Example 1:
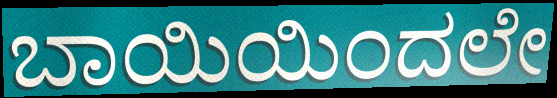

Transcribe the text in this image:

ಬಾಯಿಯಿಂದಲೇ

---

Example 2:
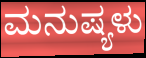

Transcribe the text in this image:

ಮನುಷ್ಯಳು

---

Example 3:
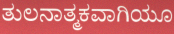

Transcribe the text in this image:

ತುಲನಾತ್ಮಕವಾಗಿಯೂ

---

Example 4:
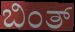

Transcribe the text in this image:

ಬಿಂತ್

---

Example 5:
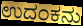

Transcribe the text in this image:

ಉದಂಕನು